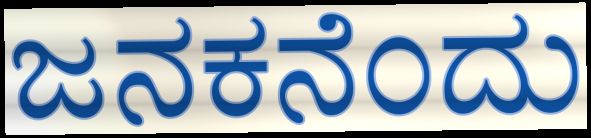
ಜನಕನೆಂದು